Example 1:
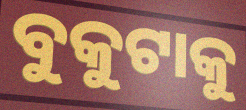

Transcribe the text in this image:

ବୁକୁଟାକୁ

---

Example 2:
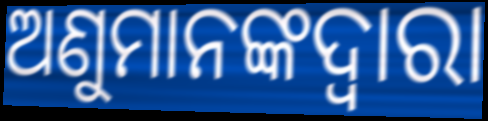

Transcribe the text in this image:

ଅଣୁମାନଙ୍କଦ୍ଵାରା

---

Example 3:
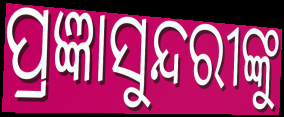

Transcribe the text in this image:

ପ୍ରଜ୍ଞାସୁନ୍ଦରୀଙ୍କୁ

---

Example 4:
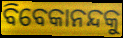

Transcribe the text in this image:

ବିବେକାନନ୍ଦକୁ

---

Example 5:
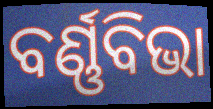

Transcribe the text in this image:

ବର୍ଣ୍ଣବିଭା